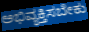
ಅಭಿವ್ಯಕ್ತಿಸಬೇಕು